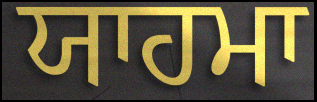
ਯਾਹਮਾ